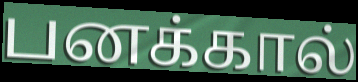
பனக்கால்